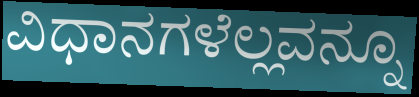
ವಿಧಾನಗಳೆಲ್ಲವನ್ನೂ